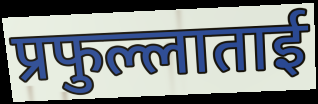
प्रफुल्लाताई